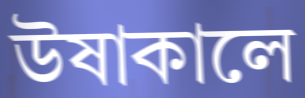
উষাকালে